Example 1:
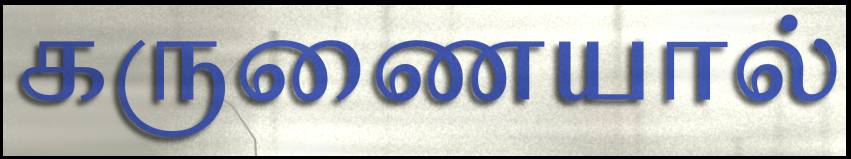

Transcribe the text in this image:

கருணையால்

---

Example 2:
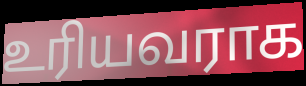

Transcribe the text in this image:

உரியவராக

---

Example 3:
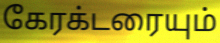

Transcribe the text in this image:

கேரக்டரையும்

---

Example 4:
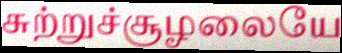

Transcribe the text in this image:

சுற்றுச்சூழலையே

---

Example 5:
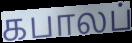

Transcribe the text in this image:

கபாலப்